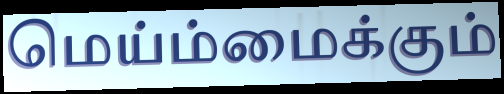
மெய்ம்மைக்கும்